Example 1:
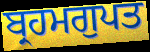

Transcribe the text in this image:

ਬ੍ਰਹਮਗੁਪਤ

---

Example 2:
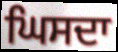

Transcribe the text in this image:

ਘਿਸਦਾ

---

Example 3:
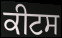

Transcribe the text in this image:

ਕੀਟਸ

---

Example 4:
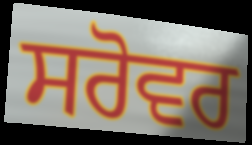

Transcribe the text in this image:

ਸਰੋਵਰ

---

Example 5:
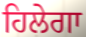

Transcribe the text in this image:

ਹਿਲੇਗਾ